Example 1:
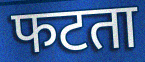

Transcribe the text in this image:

फटता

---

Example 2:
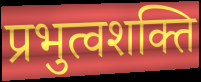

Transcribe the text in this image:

प्रभुत्वशक्ति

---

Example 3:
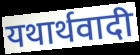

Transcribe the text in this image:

यथार्थवादी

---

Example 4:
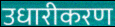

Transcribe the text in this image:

उधारीकरण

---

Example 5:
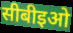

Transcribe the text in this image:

सीबीइओ